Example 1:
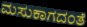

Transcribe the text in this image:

ಮಸುಕಾಗದಂತೆ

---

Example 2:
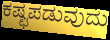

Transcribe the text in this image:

ಕಷ್ಟಪಡುವುದು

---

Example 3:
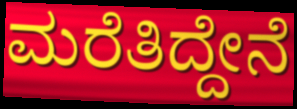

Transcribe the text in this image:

ಮರೆತಿದ್ದೇನೆ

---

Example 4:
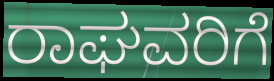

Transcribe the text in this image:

ರಾಘವರಿಗೆ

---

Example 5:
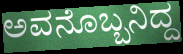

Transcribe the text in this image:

ಅವನೊಬ್ಬನಿದ್ದ